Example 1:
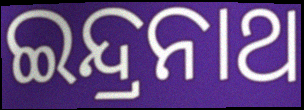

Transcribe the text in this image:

ଇନ୍ଦ୍ରନାଥ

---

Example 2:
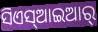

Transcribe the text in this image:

ସିଏସ୍ଆଇଆର୍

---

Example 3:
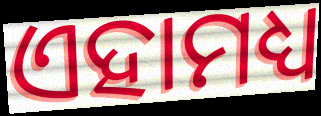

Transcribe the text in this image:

ଏହାମଧ୍ୟ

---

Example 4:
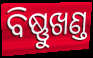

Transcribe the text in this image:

ବିଷ୍ଣୁଖଣ୍ଡ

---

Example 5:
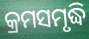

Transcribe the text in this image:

କ୍ରମସମୃଦ୍ଧି